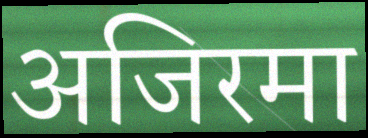
अजिरमा